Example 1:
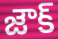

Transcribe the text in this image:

జౌక్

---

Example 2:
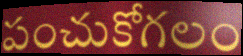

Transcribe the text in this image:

పంచుకోగలం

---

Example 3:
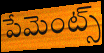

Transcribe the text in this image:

పేమెంట్స్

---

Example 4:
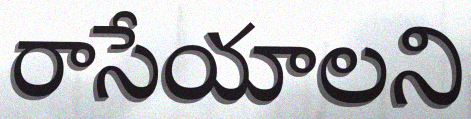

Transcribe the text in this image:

రాసేయాలని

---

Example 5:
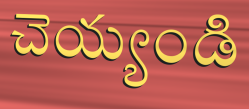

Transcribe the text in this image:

చెయ్యండి